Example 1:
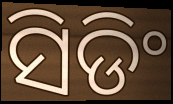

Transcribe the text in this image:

ସିଡିଂ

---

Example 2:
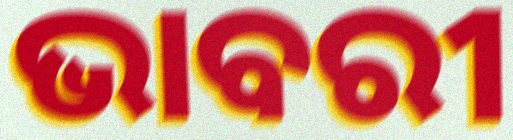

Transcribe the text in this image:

ଭାବରୀ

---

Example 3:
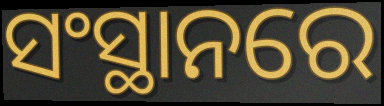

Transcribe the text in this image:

ସଂସ୍ଥାନରେ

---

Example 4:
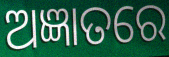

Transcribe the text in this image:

ଅଜ୍ଞାତରେ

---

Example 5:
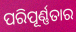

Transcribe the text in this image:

ପରିପୂର୍ଣ୍ଣତାର